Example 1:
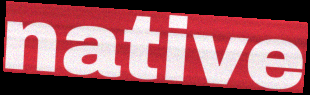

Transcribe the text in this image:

native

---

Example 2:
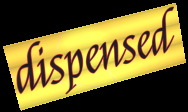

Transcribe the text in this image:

dispensed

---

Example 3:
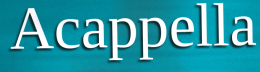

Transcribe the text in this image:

Acappella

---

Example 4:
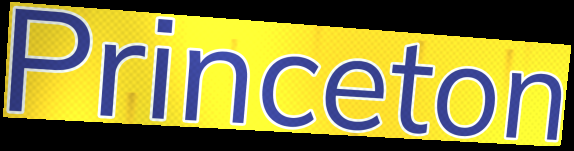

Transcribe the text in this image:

Princeton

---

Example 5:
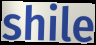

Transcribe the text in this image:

shile